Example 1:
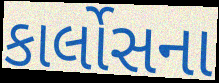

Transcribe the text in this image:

કાર્લોસના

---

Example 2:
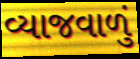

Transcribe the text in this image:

વ્યાજવાળું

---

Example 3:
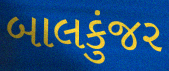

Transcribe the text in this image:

બાલકુંજર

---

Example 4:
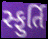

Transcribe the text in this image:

સ્ફુર્તિ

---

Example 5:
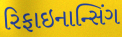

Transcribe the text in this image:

રિફાઇનાન્સિંગ